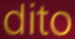
dito